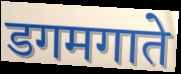
डगमगाते